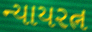
ન્યાયરત્ન